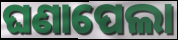
ଘଣାପେଲା